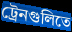
ট্রেনগুলিতে